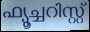
ഫ്യൂച്ചറിസ്റ്റ്